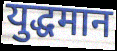
युद्धमान